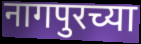
नागपुरच्या